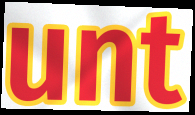
unt